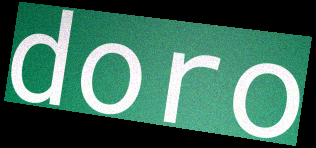
doro